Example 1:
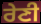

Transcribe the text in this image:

ਰੇਣੀ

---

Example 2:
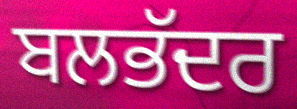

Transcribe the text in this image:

ਬਲਭੱਦਰ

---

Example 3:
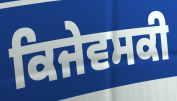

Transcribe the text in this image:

ਕਿਜੇਵਸਕੀ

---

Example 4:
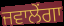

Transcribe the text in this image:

ਜਵਾਲੇਂਗਾ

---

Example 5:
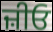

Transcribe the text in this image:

ਜ਼ੀਓ